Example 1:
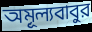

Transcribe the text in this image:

অমূল্যবাবুর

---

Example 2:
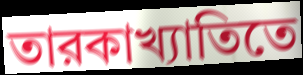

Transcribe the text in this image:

তারকাখ্যাতিতে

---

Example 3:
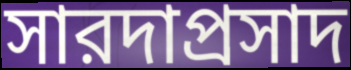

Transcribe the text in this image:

সারদাপ্রসাদ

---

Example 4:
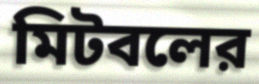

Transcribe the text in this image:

মিটবলের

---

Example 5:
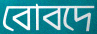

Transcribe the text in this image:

বোবদে